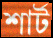
শার্ট